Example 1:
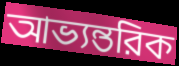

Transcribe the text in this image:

আভ্যন্তরিক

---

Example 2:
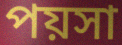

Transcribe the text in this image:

পয়সা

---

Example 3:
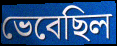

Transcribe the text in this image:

ভেবেছিল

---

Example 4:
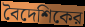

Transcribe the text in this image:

বৈদেশিকের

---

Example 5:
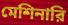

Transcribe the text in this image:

মেশিনারি